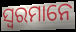
ସ୍ୱରମାନେ